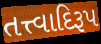
તત્ત્વાદિરૂપ